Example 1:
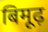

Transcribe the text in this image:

बिमूढ़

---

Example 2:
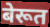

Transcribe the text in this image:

बेरूत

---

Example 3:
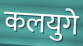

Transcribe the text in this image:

कलयुगे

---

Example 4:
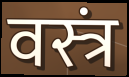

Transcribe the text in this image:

वस्त्रं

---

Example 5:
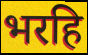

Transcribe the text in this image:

भरहि